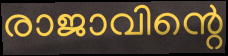
രാജാവിന്റെ